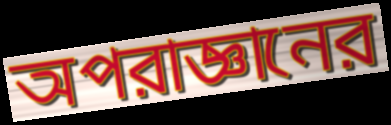
অপরাজ্ঞানের